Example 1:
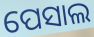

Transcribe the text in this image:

ପେସାଲ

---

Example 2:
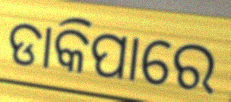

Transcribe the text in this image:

ଡାକିପାରେ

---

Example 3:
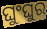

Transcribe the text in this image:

ଘୁଂଘୁର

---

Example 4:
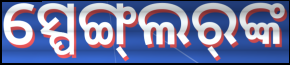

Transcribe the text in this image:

ସ୍ପେଙ୍ଗ୍‌ଲର୍‌ଙ୍କ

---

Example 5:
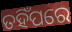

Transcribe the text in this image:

ତହିଁପରେ